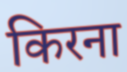
किरना